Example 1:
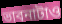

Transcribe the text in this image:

ভাবনাটাও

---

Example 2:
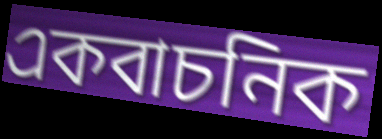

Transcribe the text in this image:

একবাচনিক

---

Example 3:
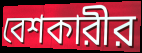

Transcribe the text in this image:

বেশকারীর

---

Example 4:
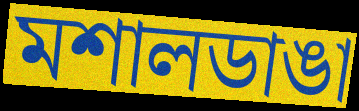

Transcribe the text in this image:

মশালডাঙা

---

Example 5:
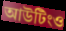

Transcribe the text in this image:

আউটিংও